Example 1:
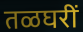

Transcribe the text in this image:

तळघरीं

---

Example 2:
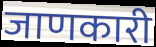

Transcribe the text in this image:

जाणकारी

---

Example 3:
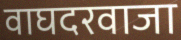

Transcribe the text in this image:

वाघदरवाजा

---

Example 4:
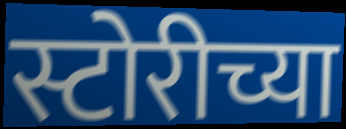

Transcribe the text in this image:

स्टोरीच्या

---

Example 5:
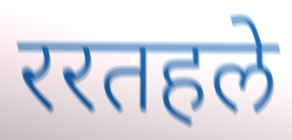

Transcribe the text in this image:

ररतहले